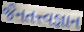
જૈનતત્ત્વજ્ઞાન